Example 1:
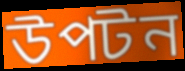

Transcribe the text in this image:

উপটন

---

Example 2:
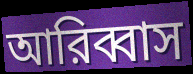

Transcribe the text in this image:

আরিব্বাস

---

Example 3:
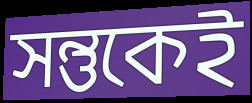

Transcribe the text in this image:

সন্তুকেই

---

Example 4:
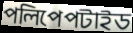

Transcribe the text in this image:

পলিপেপটাইড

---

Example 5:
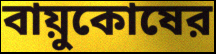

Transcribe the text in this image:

বায়ুকোষের